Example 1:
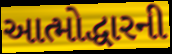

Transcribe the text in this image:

આત્મોદ્ધારની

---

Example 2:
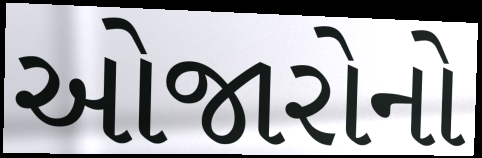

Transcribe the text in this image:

ઓજારોનો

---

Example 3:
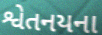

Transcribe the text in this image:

શ્વેતનયના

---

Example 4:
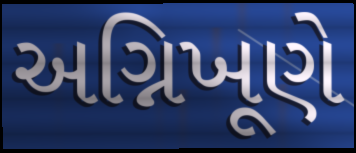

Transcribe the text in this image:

અગ્નિખૂણે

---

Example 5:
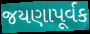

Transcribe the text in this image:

જયણાપૂર્વક